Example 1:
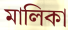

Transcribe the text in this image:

মালিকা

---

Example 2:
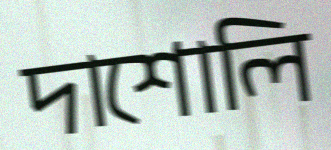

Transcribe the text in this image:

দাশোলি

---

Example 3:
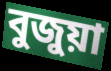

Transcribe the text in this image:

বুজুয়া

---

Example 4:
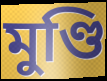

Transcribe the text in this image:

মুণ্ডি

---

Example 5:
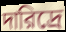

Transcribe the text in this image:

দারিদ্রে